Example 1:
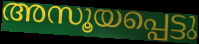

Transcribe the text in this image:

അസൂയപ്പെട്ടു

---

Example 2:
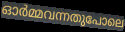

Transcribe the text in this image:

ഓർമ്മവന്നതുപോലെ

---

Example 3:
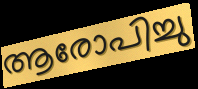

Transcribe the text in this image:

ആരോപിച്ചു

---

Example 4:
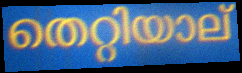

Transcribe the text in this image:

തെറ്റിയാല്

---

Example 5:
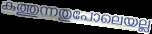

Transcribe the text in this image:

കുത്തുന്നതുപോലെയല്ല